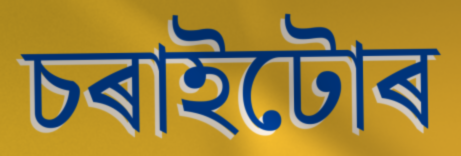
চৰাইটোৰ